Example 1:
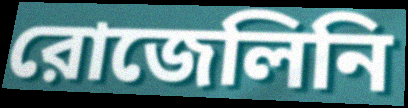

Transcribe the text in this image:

রোজেলিনি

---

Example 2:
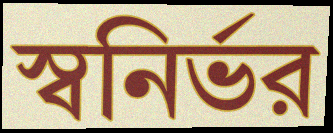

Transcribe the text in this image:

স্বনির্ভর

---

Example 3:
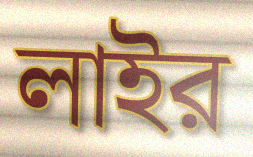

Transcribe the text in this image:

লাইর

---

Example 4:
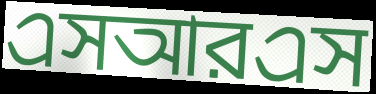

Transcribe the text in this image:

এসআরএস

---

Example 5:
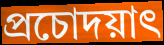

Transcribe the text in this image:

প্রচোদয়াৎ